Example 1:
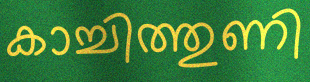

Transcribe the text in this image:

കാച്ചിത്തുണി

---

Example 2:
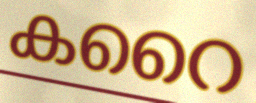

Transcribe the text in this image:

കറൈ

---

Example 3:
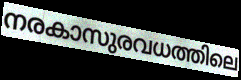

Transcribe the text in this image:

നരകാസുരവധത്തിലെ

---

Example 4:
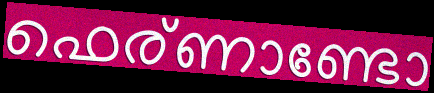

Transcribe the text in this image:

ഫെര്ണാണ്ടോ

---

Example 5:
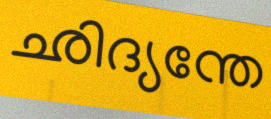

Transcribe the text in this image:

ഛിദ്യന്തേ